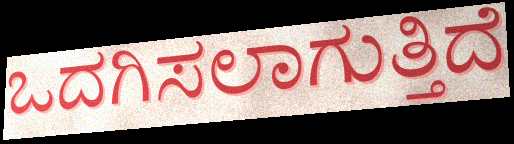
ಒದಗಿಸಲಾಗುತ್ತಿದೆ